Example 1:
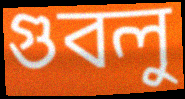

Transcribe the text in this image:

গুবলু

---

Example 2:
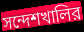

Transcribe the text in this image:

সন্দেশখালির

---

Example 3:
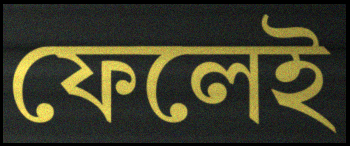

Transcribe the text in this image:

ফেলেই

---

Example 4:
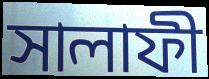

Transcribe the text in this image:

সালাফী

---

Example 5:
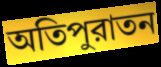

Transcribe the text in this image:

অতিপুরাতন